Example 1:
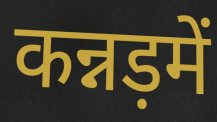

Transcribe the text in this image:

कन्नड़में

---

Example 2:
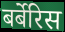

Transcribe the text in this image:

बर्बेरिस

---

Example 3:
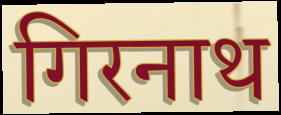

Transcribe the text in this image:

गिरनाथ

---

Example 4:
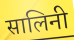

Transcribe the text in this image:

सालिनी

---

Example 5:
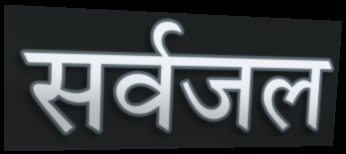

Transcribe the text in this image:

सर्वजल